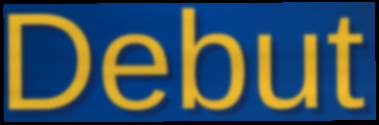
Debut